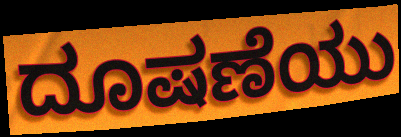
ದೂಷಣೆಯು